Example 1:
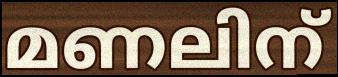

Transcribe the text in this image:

മണലിന്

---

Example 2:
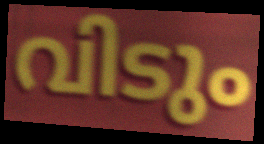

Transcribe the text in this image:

വിടും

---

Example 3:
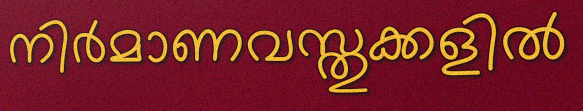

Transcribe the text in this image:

നിർമാണവസ്തുക്കളിൽ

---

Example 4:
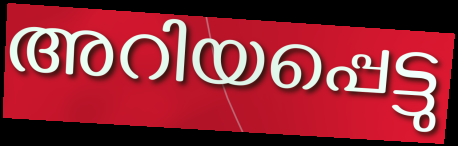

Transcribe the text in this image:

അറിയപ്പെട്ടു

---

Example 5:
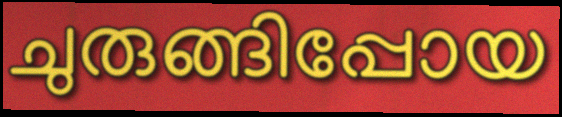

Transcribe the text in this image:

ചുരുങ്ങിപ്പോയ